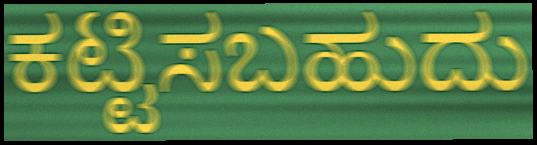
ಕಟ್ಟಿಸಬಹುದು